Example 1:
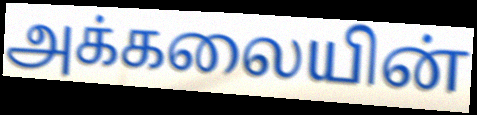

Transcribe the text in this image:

அக்கலையின்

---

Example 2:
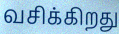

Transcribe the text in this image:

வசிக்கிறது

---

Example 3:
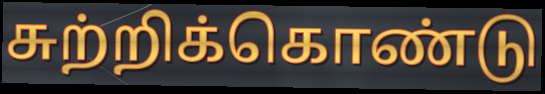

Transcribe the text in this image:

சுற்றிக்கொண்டு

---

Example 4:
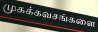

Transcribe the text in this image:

முகக்கவசங்களை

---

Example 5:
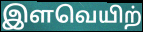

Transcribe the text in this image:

இளவெயிற்